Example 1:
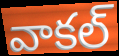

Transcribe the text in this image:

వాకల్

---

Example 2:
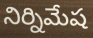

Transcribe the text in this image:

నిర్నిమేష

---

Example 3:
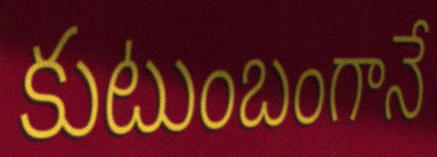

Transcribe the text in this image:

కుటుంబంగానే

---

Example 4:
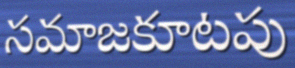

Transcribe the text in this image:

సమాజకూటపు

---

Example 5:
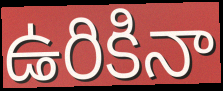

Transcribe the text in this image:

ఉరికినా